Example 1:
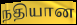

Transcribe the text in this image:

நதியான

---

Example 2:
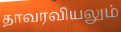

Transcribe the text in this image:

தாவரவியலும்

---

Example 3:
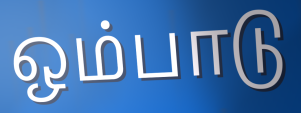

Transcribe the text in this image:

ஒம்பாடு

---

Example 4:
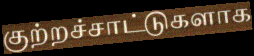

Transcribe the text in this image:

குற்றச்சாட்டுகளாக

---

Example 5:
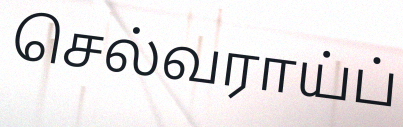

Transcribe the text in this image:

செல்வராய்ப்